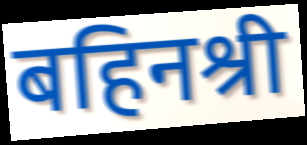
बहिनश्री